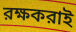
রক্ষকরাই